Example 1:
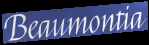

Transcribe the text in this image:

Beaumontia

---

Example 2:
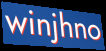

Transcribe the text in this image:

winjhno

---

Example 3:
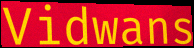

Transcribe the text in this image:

Vidwans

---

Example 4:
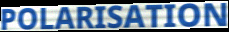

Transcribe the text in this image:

POLARISATION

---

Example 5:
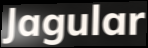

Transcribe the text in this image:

Jagular